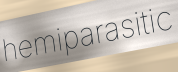
hemiparasitic